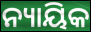
ନ୍ୟାୟିକ